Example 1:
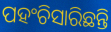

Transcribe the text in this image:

ପହଂଚିସାରିଛନ୍ତି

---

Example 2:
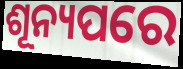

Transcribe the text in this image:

ଶୂନ୍ୟପରେ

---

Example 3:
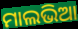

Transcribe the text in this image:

ମାଲଭିଆ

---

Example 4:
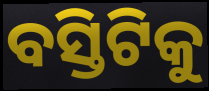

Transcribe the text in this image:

ବସ୍ତିଟିକୁ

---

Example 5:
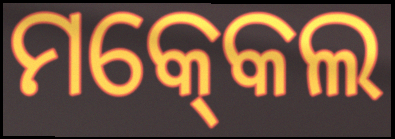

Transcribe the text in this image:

ମକ୍‍କେଲ